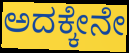
ಅದಕ್ಕೇನೇ